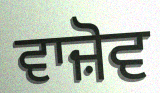
ਵਾਜ਼ੋਵ